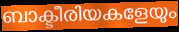
ബാക്ടീരിയകളേയും